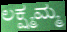
ಲಕ್ಷ್ಮಮ್ಮ